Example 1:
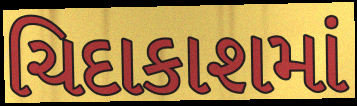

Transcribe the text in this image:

ચિદાકાશમાં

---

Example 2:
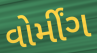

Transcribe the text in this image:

વોર્મીંગ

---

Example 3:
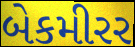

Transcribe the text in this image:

બેકમીરર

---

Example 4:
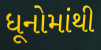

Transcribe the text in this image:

ધૂનોમાંથી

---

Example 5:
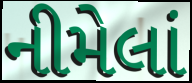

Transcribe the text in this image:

નીમેલાં